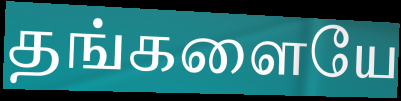
தங்களையே